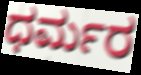
ಧರ್ಮರ